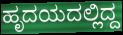
ಹೃದಯದಲ್ಲಿದ್ದ